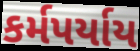
કર્મપર્યાય